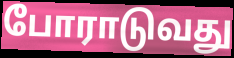
போராடுவது